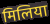
मिलिया